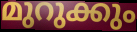
മുറുക്കും